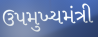
ઉપમુખ્યમંત્રી